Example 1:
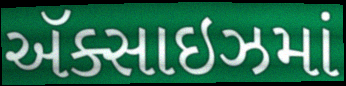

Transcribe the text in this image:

ઍક્સાઇઝમાં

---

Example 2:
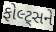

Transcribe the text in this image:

ફોલ્ટ્સને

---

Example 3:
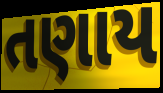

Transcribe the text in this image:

તણાય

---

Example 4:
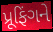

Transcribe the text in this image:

પ્રૂફિંગને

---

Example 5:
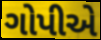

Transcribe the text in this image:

ગોપીએ